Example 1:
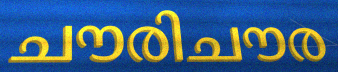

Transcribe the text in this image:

ചൗരിചൗര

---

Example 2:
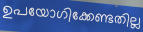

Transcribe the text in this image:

ഉപയോഗിക്കേണ്ടതില്ല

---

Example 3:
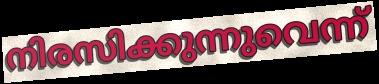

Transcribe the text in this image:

നിരസിക്കുന്നുവെന്ന്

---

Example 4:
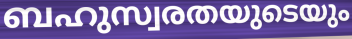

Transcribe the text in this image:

ബഹുസ്വരതയുടെയും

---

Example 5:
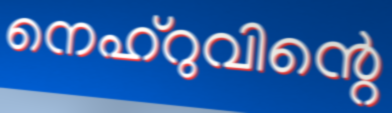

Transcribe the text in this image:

നെഹ്റുവിന്റെ